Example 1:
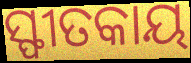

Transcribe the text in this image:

ସ୍ଫୀତକାୟ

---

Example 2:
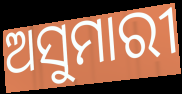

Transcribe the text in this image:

ଅସୁମାରୀ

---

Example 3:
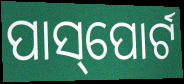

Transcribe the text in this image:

ପାସ୍‌ପୋର୍ଟ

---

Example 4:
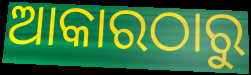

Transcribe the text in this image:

ଆକାରଠାରୁ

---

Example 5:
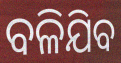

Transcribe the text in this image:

ବଳିଯିବ